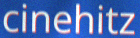
cinehitz